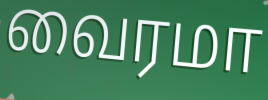
வைரமா